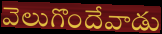
వెలుగొందేవాడు